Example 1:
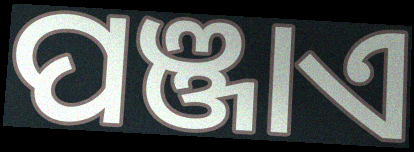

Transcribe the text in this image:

ପଞ୍ଜାଏ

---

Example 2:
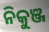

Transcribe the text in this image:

ନିକୁଞ୍ଜ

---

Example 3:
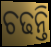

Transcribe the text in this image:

ଚଢନ୍ତି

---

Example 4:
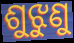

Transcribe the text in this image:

ଶୁଝୁଣୁ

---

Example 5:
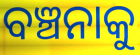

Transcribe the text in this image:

ବଞ୍ଚନାକୁ